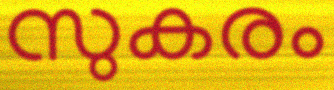
സുകരം